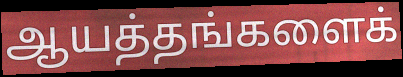
ஆயத்தங்களைக்